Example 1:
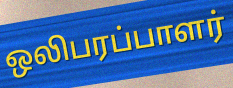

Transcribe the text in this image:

ஒலிபரப்பாளர்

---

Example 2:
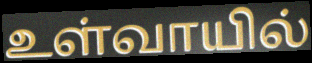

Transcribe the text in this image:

உள்வாயில்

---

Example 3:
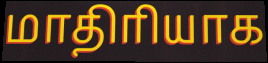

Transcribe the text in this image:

மாதிரியாக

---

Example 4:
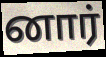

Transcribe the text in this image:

னார்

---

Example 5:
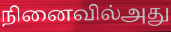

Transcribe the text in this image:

நினைவில்அது